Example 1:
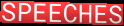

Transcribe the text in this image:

SPEECHES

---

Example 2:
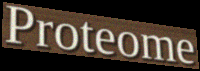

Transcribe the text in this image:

Proteome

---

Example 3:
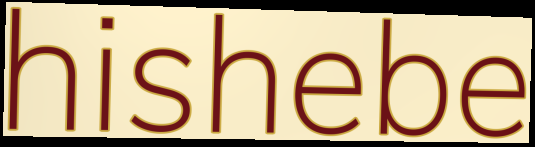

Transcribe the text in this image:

hishebe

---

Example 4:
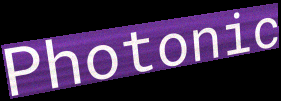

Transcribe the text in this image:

Photonic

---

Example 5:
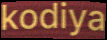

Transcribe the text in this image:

kodiya